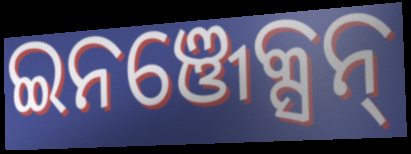
ଇନଞ୍ଜେକ୍ସନ୍